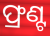
ଫ୍ରଣ୍ଟ